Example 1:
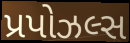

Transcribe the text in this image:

પ્રપોઝલ્સ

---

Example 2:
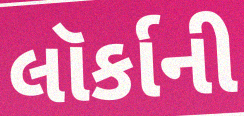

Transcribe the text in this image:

લૉર્કાની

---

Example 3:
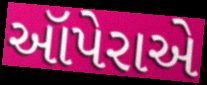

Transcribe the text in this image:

ઑપેરાએ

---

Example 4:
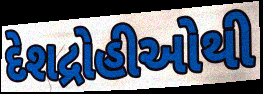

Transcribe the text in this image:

દેશદ્રોહીઓથી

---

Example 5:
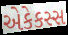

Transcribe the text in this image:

એકેકસ્સ